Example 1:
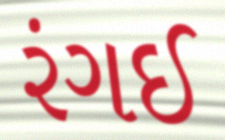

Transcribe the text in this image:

રંગઈ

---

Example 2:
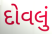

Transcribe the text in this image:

દોવલું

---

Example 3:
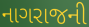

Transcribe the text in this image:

નાગરાજની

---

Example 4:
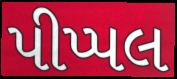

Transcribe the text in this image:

પીપ્પલ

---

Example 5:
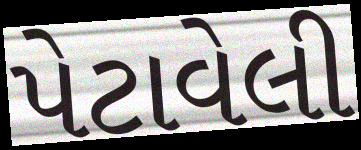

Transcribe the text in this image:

પેટાવેલી